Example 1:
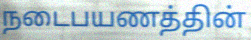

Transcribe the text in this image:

நடைபயணத்தின்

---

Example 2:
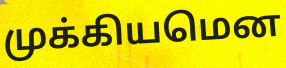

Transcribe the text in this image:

முக்கியமென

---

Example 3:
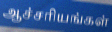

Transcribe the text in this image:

ஆச்சரியங்கள்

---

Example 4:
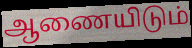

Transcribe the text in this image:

ஆணையிடும்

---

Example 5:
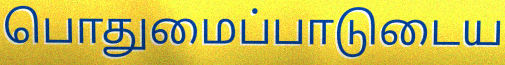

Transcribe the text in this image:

பொதுமைப்பாடுடைய